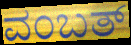
ವಂಬತ್